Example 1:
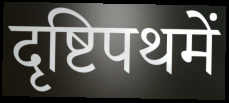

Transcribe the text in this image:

दृष्टिपथमें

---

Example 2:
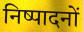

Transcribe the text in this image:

निष्पादनों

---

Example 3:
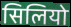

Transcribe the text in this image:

सिलियो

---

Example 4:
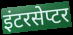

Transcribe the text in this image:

इंटरसेप्टर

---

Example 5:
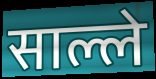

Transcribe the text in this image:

साल्ले